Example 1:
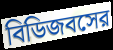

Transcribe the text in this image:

বিডিজবসের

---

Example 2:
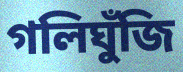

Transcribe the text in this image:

গলিঘুঁজি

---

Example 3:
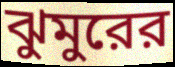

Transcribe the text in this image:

ঝুমুরের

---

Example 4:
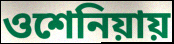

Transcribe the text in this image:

ওশেনিয়ায়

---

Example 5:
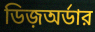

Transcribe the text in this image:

ডিজ়অর্ডার